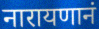
नारायणानं